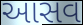
આસવ